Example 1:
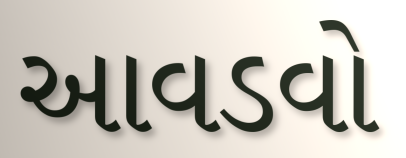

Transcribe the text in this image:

આવડવો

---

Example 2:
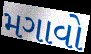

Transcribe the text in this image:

મગાવો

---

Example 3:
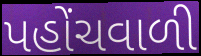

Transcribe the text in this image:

પહોંચવાળી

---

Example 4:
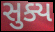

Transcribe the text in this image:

સુક્ય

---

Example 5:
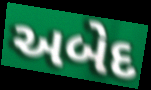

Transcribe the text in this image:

અબેદ